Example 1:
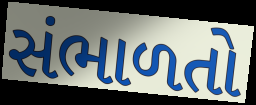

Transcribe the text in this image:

સંભાળતો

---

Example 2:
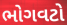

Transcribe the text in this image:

ભોગવટો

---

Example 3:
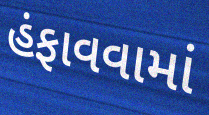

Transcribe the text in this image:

હંફાવવામાં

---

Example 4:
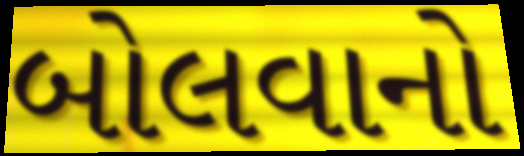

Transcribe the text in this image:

બોલવાનો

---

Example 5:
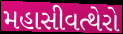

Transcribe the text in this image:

મહાસીવત્થેરો